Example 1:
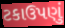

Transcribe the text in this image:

ટકાઉપણું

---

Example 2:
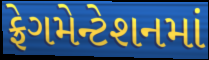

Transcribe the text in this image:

ફ્રેગમેન્ટેશનમાં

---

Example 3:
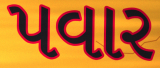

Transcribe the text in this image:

પવાર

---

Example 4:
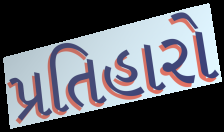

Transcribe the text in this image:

પ્રતિહારો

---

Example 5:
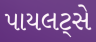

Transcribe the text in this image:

પાયલટ્સે